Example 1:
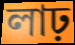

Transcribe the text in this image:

লাঢ়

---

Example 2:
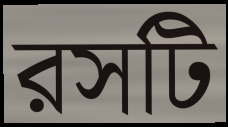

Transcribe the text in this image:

রসটি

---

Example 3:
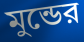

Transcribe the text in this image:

মুন্ডের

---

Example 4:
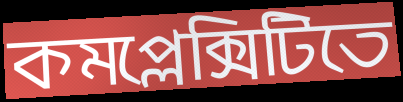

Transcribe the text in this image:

কমপ্লেক্সিটিতে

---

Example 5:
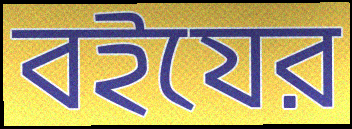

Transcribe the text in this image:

বইযের